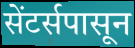
सेंटर्सपासून